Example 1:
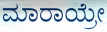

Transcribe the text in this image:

ಮಾರಾಯ್ರೇ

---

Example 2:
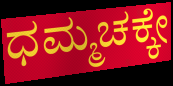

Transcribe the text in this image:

ಧಮ್ಮಚಕ್ಕೇ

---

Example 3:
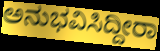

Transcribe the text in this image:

ಅನುಭವಿಸಿದ್ದೀರಾ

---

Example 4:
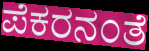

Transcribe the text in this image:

ಪೆಕರನಂತೆ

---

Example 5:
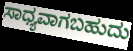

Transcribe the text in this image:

ಸಾಧ್ಯವಾಗಬಹುದು